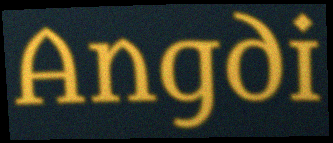
Angdi